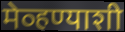
मेव्हण्याशी